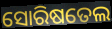
ସୋରିଷତେଲ